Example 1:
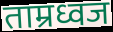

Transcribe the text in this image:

ताम्रध्वज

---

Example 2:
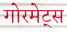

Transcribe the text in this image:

गोरमेट्स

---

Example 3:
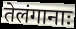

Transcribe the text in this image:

तेलंगानाः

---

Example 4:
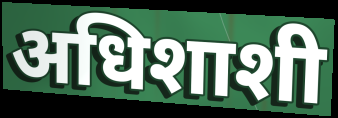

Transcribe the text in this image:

अधिशाशी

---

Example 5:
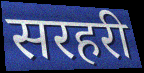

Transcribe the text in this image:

सरहरी